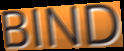
BIND